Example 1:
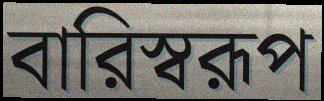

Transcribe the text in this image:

বারিস্বরূপ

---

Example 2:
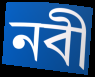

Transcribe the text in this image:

নবী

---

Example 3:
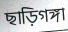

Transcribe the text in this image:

ছাড়িগঙ্গা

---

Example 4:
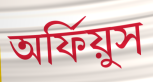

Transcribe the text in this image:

অর্ফিয়ুস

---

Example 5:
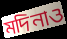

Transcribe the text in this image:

মদিনাও